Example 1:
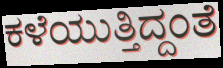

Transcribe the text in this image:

ಕಳೆಯುತ್ತಿದ್ದಂತೆ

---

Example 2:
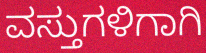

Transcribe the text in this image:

ವಸ್ತುಗಳಿಗಾಗಿ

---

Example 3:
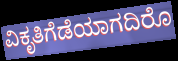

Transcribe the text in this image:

ವಿಕೃತಿಗೆಡೆಯಾಗದಿರೊ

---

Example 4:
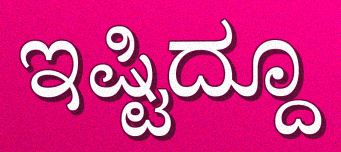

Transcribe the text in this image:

ಇಷ್ಟಿದ್ದೂ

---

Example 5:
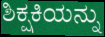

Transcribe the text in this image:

ಶಿಕ್ಷಕಿಯನ್ನು